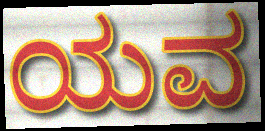
ಯವ